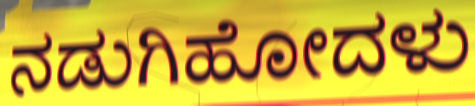
ನಡುಗಿಹೋದಳು